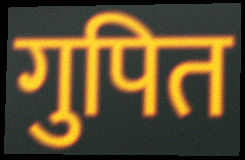
गुपित